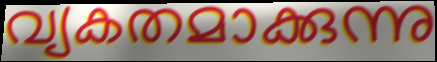
വ്യകതമാക്കുന്നു